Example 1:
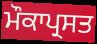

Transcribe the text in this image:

ਮੌਕਾਪ੍ਰਸਤ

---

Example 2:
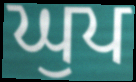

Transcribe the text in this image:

ਘੁਪ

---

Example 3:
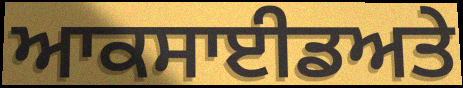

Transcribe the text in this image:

ਆਕਸਾਈਡਅਤੇ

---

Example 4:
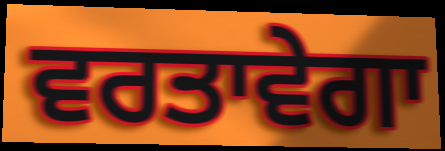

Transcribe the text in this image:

ਵਰਤਾਵੇਗਾ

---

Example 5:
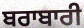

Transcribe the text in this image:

ਬਰਾਬਾਰੀ